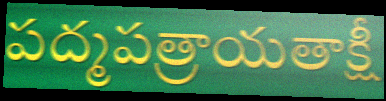
పద్మపత్రాయతాక్షీ